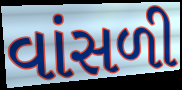
વાંસળી